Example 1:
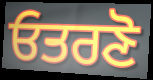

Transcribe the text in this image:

ਓਤਰਣੋ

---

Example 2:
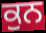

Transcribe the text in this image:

ਕੁਨ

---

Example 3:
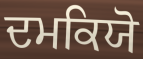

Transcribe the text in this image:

ਦਮਕਿਯੋ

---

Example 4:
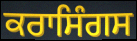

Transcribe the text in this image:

ਕਰਾਸਿੰਗਸ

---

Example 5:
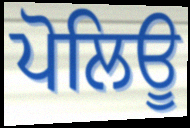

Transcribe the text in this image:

ਪੋਲਿਊ